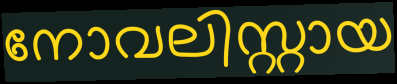
നോവലിസ്റ്റായ